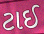
ટાઈ